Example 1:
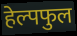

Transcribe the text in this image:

हेल्पफुल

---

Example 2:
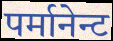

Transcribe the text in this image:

पर्मानेन्ट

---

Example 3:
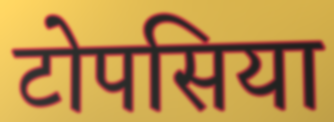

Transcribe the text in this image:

टोपसिया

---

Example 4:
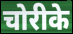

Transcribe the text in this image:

चोरीके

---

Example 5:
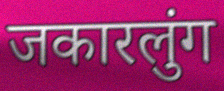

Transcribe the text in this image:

जकारलुंग